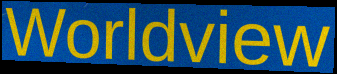
Worldview